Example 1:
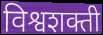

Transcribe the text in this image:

विश्वशक्ती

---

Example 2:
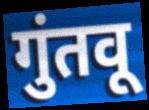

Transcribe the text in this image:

गुंतवू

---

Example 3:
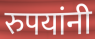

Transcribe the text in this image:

रुपयांनी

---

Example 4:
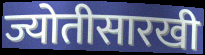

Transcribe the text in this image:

ज्योतीसारखी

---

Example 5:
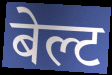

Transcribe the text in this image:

बेल्ट